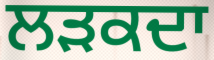
ਲੜਕਦਾ